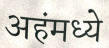
अहंमध्ये